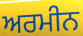
ਅਰਮੀਨ